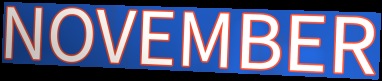
NOVEMBER